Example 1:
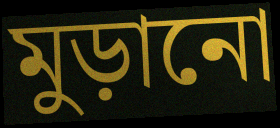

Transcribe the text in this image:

মুড়ানো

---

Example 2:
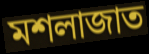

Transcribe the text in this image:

মশলাজাত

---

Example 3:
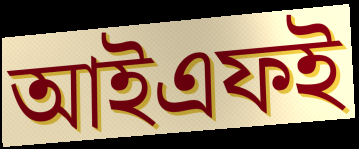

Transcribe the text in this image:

আইএফই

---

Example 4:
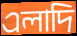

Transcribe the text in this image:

এলাদি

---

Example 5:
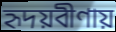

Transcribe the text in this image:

হৃদয়বীণায়